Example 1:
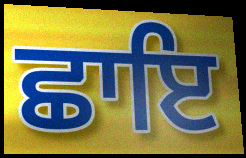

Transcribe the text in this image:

ਛਾਇ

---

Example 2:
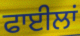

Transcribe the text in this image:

ਫਾਈਲਾਂ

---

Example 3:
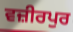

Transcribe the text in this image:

ਵਜ਼ੀਰਪੁਰ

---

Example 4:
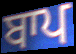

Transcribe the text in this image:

ਬਾਪ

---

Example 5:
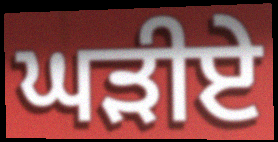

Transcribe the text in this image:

ਘੜੀਏ